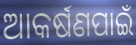
ଆକର୍ଷଣପାଇଁ